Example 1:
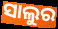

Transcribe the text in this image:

ସାଲୁର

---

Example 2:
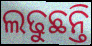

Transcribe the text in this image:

ଲଢୁଛନ୍ତି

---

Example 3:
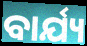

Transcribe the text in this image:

ବାର୍ଯ୍ୟ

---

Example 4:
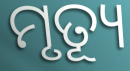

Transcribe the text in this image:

ମୃତ୍ୟୂ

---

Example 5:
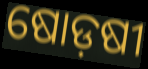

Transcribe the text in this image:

ଷୋଡ଼ଷୀ